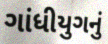
ગાંધીયુગનું